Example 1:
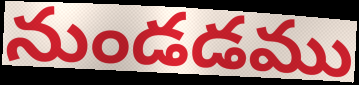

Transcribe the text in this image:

నుండడము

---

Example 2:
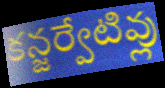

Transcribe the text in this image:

కన్జర్వేటివ్లు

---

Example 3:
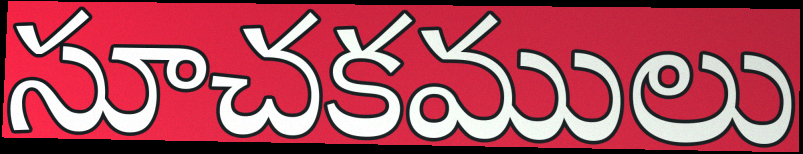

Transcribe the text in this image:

సూచకములు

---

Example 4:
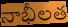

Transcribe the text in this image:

నాభీలత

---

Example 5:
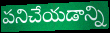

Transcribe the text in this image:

పనిచేయడాన్ని